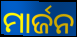
ମାର୍ଜନ